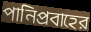
পানিপ্রবাহের